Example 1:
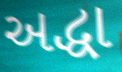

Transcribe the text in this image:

અદ્ધા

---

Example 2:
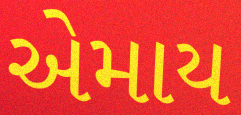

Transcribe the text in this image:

એમાય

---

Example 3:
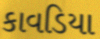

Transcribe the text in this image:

કાવડિયા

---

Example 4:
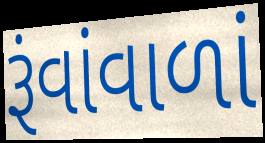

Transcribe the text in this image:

રૂંવાંવાળાં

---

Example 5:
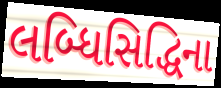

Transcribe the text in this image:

લબ્ધિસિદ્ધિના